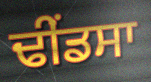
ਢੀੰਂਡਸਾ